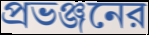
প্রভঞ্জনের